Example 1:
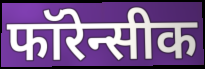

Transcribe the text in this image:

फॉरेन्सीक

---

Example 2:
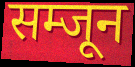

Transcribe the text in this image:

सम्जून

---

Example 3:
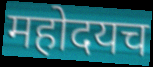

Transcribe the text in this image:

महोदयच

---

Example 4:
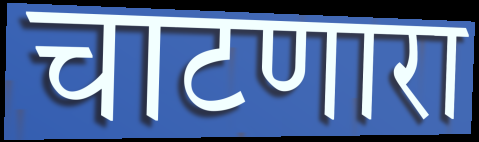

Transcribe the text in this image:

चाटणारा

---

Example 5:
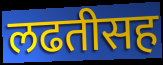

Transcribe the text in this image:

लढतीसह